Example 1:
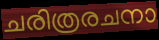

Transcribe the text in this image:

ചരിത്രരചനാ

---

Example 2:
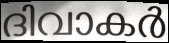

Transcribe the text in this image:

ദിവാകർ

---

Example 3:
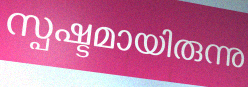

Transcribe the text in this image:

സ്പഷ്ടമായിരുന്നു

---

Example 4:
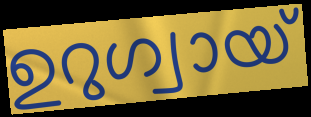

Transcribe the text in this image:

ഉറുഗ്വായ്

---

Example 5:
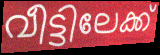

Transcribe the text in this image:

വീട്ടിലേക്ക്